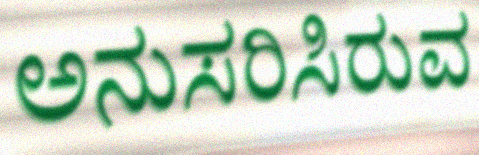
ಅನುಸರಿಸಿರುವ